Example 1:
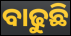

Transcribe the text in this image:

ବାଢୁଛି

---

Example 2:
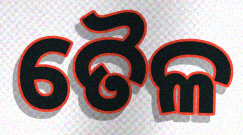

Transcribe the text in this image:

ତୈଳ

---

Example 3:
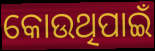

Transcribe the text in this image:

କୋଉଥିପାଇଁ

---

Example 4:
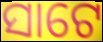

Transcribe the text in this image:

ସାଟେ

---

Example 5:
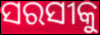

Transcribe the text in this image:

ସରସୀକୁ